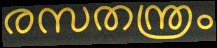
രസതന്ത്രം